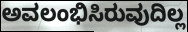
ಅವಲಂಭಿಸಿರುವುದಿಲ್ಲ